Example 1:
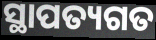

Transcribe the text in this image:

ସ୍ଥାପତ୍ୟଗତ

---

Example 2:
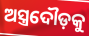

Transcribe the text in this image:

ଅସ୍ତ୍ରଦୌଡ଼କୁ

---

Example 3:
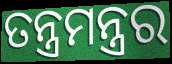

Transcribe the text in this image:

ତନ୍ତ୍ରମନ୍ତ୍ରର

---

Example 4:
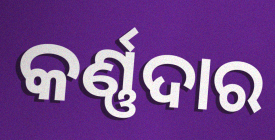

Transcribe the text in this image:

କର୍ଣ୍ଣଦାର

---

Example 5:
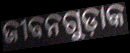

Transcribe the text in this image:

ଜୀବନଗୁଡ଼ାକ